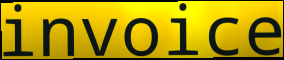
invoice